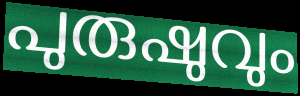
പുരുഷുവും